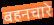
बहनचारे